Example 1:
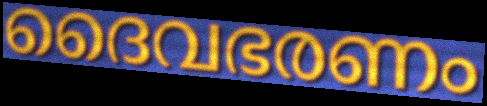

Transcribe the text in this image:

ദൈവഭരണം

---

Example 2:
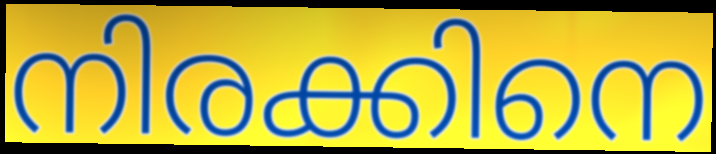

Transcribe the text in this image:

നിരക്കിനെ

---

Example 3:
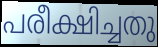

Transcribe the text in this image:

പരീക്ഷിച്ചതു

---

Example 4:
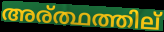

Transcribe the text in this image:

അര്ത്ഥത്തില്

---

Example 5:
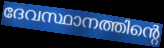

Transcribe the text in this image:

ദേവസ്ഥാനത്തിന്റെ